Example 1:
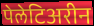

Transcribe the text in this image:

पेलेटिअरीन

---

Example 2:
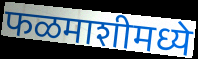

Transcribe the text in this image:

फळमाशीमध्ये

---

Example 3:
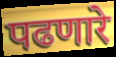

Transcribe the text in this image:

पढणारे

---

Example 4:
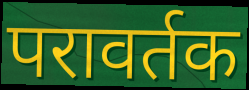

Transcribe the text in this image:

परावर्तक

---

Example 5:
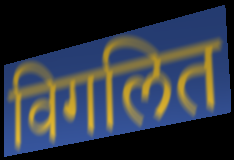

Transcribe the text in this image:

विगलित